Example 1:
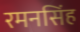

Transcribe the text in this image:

रमनसिंह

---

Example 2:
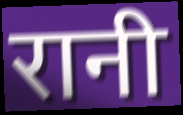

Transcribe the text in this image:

रानी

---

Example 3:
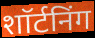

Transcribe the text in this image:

शॉर्टनिंग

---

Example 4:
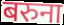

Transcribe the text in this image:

बरुना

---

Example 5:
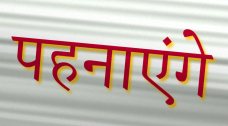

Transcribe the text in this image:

पहनाएंगे